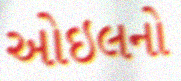
ઓઇલનો